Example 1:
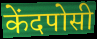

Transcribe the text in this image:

केंदपोसी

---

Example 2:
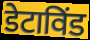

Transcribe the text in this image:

डेटाविंड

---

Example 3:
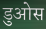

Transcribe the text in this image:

डुओस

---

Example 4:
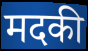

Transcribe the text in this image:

मदकी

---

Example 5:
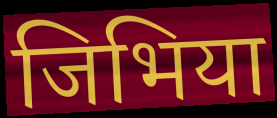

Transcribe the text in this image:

जिभिया